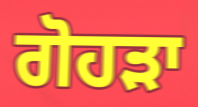
ਗੋਹੜਾ